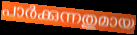
പാർക്കുന്നതുമായ